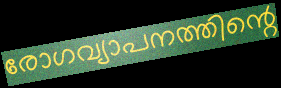
രോഗവ്യാപനത്തിന്റെ